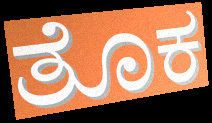
ತೊಕ